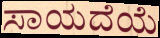
ಸಾಯದೆಯೆ